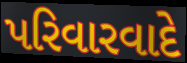
પરિવારવાદે